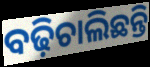
ବଢ଼ିଚାଲିଛନ୍ତି